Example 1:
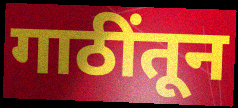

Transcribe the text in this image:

गाठींतून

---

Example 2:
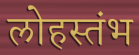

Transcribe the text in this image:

लोहस्तंभ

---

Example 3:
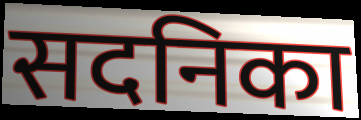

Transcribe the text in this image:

सदनिका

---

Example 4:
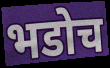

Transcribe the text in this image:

भडोच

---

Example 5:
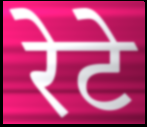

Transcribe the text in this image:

रेटे